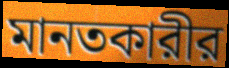
মানতকারীর